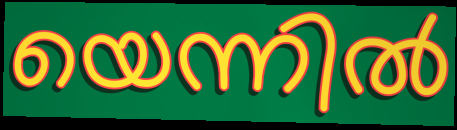
യെന്നിൽ